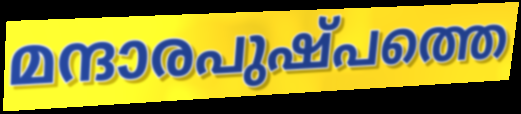
മന്ദാരപുഷ്പത്തെ